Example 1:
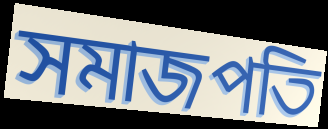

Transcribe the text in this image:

সমাজপতি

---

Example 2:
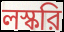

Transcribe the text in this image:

লস্করি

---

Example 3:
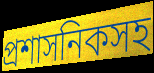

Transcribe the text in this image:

প্রশাসনিকসহ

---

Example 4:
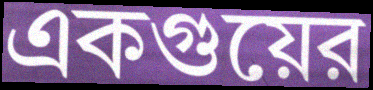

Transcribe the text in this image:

একগুয়ের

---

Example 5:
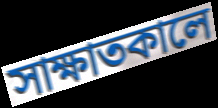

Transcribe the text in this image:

সাক্ষাতকালে